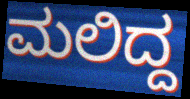
ಮಲಿದ್ದ